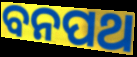
ବନପଥ